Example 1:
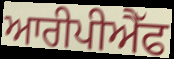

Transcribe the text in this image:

ਆਰੀਪੀਐੱਫ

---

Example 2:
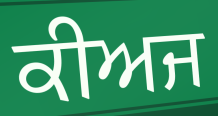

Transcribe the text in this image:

ਕੀਅਜ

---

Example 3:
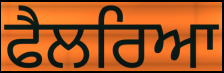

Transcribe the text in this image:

ਫੈਲਰਿਆ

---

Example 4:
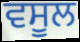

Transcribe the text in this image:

ਵਸੂਲ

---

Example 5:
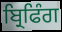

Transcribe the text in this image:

ਬ੍ਰਿਫਿੰਗ